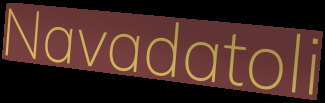
Navadatoli